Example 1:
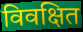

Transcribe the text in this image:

विवक्षित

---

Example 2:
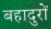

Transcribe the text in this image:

बहादुरों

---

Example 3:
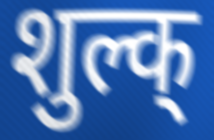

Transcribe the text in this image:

शुल्क्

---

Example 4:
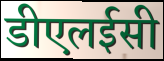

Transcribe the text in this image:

डीएलईसी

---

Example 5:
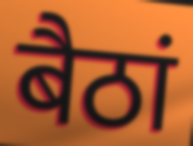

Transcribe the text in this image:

बैठां